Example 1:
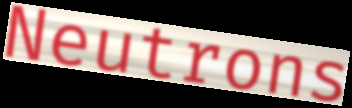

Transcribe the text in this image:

Neutrons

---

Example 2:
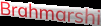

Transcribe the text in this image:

Brahmarshi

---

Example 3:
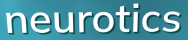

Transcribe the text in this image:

neurotics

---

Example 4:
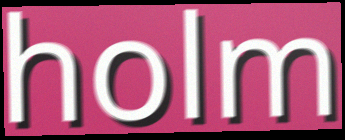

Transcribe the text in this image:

holm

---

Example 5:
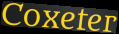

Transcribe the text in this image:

Coxeter